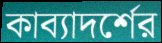
কাব্যাদর্শের